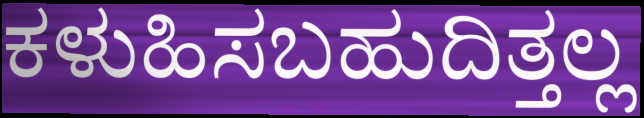
ಕಳುಹಿಸಬಹುದಿತ್ತಲ್ಲ